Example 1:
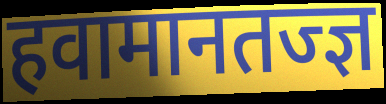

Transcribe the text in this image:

हवामानतज्ज्ञ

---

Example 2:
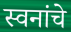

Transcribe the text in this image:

स्वनांचे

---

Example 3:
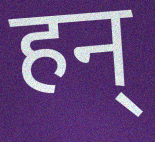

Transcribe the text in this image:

हन्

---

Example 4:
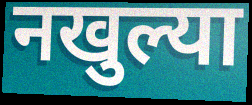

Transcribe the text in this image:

नखुल्या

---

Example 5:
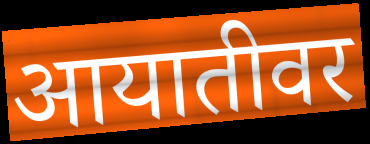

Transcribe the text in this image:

आयातीवर